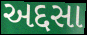
અદ્દસા